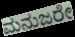
ಮನುಜರೇ